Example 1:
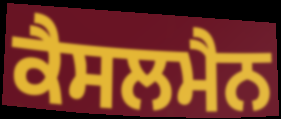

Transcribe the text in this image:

ਕੈਸਲਮੈਨ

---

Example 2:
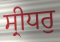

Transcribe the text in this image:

ਸ੍ਰੀਧਰੁ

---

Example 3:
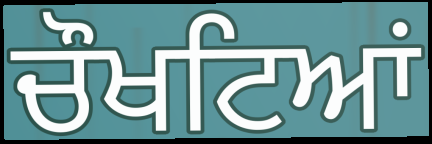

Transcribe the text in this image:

ਚੌਖਟਿਆਂ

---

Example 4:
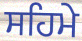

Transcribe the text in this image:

ਸਹਿਮੇ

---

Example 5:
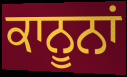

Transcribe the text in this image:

ਕਾਨੂਨਾਂ